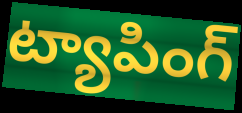
ట్యాపింగ్